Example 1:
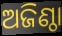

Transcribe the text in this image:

ଅଜିଣ୍ଠା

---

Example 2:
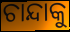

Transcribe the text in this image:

ଚାନ୍ଦାକୁ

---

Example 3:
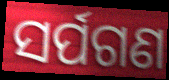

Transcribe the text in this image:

ସର୍ପଗଣ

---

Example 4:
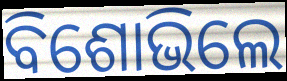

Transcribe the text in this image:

ବିଶୋଭିଲେ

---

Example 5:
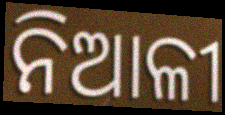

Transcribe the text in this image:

ନିଆଳୀ